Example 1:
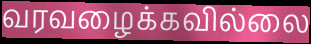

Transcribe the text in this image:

வரவழைக்கவில்லை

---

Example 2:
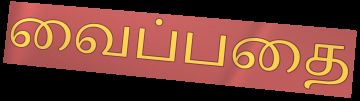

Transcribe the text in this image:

வைப்பதை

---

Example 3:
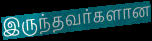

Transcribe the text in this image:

இருந்தவர்களான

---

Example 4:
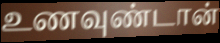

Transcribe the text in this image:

உணவுண்டான்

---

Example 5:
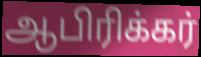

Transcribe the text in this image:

ஆபிரிக்கர்